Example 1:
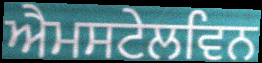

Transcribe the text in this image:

ਐਮਸਟੇਲਵਿਨ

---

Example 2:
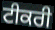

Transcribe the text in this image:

ਟੀਕਰੀ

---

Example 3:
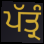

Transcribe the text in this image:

ਪੱਤ੍ਰੰ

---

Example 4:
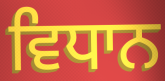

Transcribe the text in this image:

ਵਿਧਾਨ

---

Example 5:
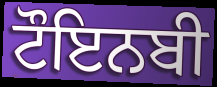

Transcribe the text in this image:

ਟੌਇਨਬੀ